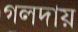
গলদায়